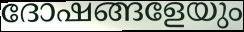
ദോഷങ്ങളേയും